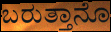
ಬರುತ್ತಾನೊ